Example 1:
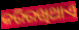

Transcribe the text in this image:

କରିରଖିଥାଏ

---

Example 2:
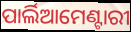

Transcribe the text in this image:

ପାର୍ଲିଆମେଣ୍ଟାରୀ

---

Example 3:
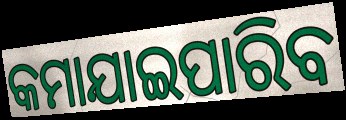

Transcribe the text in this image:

କମାଯାଇପାରିବ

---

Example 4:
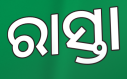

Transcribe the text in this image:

ରାସ୍ତା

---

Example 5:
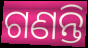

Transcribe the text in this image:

ଗଣନ୍ତି